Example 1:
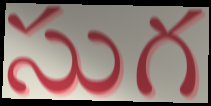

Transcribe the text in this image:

సుగ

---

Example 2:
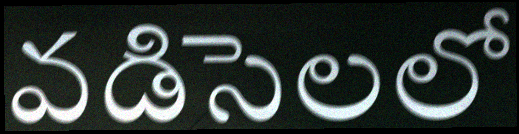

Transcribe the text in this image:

వడిసెలలో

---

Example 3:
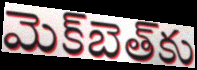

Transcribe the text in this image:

మెక్‌బెత్‌కు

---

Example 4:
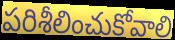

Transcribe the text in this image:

పరిశీలించుకోవాలి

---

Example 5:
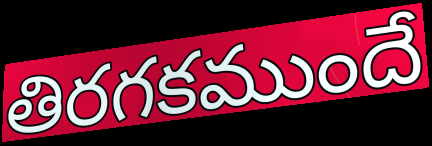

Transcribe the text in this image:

తిరగకముందే